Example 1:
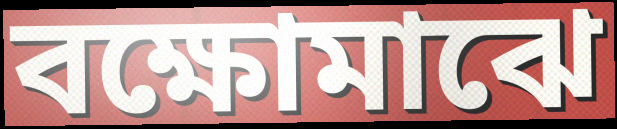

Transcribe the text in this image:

বক্ষোমাঝে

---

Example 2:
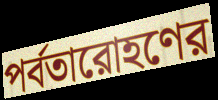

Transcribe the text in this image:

পর্বতারোহণের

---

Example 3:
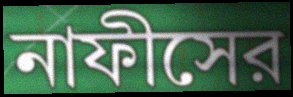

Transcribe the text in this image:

নাফীসের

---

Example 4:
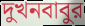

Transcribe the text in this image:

দুখনবাবুর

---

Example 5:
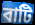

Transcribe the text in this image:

বাটি